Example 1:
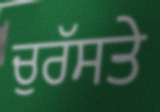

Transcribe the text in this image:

ਚੁਰੱਸਤੇ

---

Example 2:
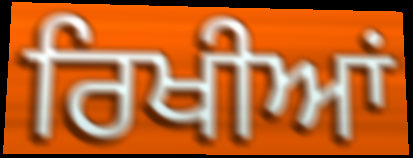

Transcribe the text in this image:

ਰਿਖੀਆਂ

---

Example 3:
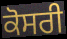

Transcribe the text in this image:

ਕੋਸਰੀ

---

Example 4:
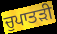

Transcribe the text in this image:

ਚੁਪਾਤੜੀ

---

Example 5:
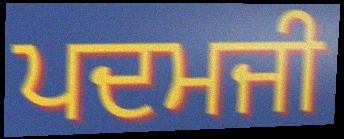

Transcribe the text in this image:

ਪਦਮਜੀ